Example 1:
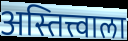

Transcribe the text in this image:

अस्तित्त्वाला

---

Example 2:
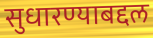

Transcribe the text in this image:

सुधारण्याबद्दल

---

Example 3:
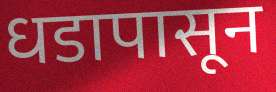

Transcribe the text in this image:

धडापासून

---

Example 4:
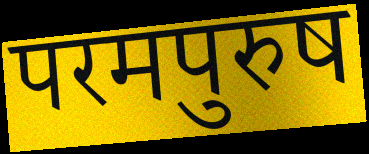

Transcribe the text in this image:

परमपुरुष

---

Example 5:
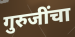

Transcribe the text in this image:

गुरुजींचा